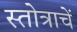
स्तोत्राचें